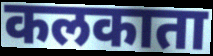
कलकाता